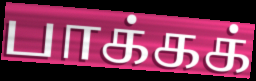
பாக்கக்